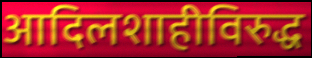
आदिलशाहीविरुद्ध